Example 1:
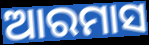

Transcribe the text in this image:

ଆରମାସ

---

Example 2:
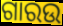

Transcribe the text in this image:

ଗାରଉ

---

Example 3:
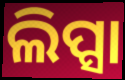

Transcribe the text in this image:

ଲିପ୍ସା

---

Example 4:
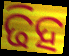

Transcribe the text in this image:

ଢିହ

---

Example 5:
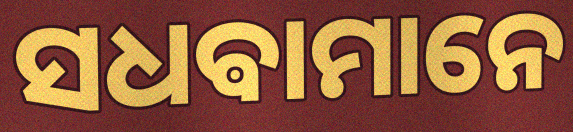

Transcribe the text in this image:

ସଧଵାମାନେ